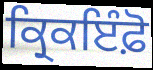
ਕ੍ਰਿਕਇੰਫ਼ੋ